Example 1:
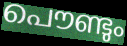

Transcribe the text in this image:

പൌണ്ടും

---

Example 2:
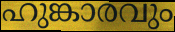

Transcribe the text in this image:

ഹുങ്കാരവും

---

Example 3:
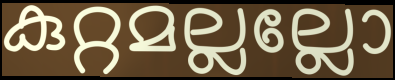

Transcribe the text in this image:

കുറ്റമല്ലല്ലോ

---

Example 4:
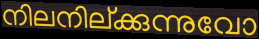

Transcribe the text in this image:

നിലനില്ക്കുന്നുവോ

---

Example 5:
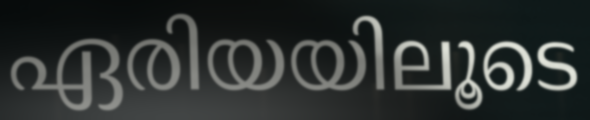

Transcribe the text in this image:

ഏരിയയിലൂടെ